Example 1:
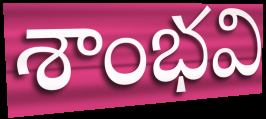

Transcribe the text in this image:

శాంభవి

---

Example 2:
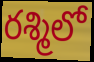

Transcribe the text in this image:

రశ్మిలో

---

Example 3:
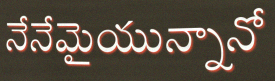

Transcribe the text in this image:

నేనేమైయున్నానో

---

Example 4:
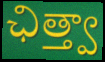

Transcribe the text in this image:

ఛిత్త్వా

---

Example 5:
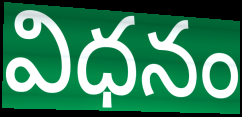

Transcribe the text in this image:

విధనం